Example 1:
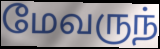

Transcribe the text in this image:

மேவருந்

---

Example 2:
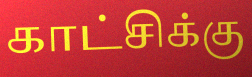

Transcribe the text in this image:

காட்சிக்கு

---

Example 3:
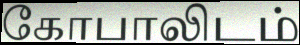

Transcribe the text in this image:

கோபாலிடம்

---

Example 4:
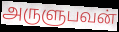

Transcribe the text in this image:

அருளுபவன்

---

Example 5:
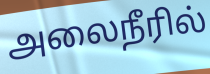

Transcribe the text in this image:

அலைநீரில்